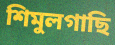
শিমুলগাছি